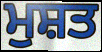
ਮੁਸ਼ਤ